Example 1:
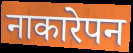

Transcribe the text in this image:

नाकारेपन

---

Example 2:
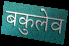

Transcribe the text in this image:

बकुलेव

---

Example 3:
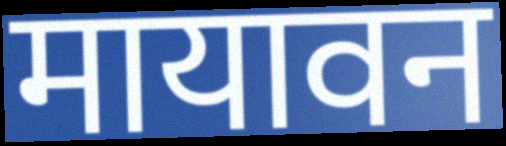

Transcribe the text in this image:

मायावन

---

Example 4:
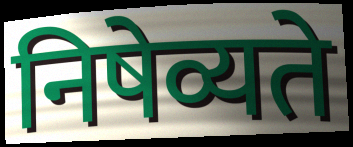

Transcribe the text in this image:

निषेव्यते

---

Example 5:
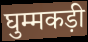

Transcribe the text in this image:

घुम्मकड़ी